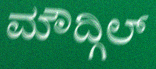
ಮೌದ್ಗಿಲ್